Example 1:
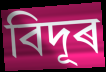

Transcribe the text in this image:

বিদূৰ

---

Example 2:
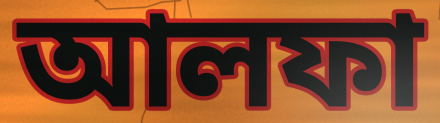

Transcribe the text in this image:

আলফা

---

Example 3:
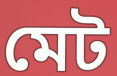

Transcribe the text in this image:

মেট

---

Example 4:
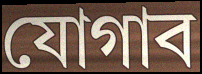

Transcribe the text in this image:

যোগাব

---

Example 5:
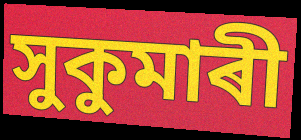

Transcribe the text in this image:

সুকুমাৰী